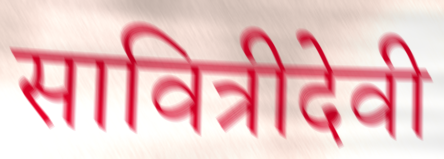
सावित्रीदेवी